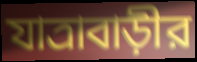
যাত্রাবাড়ীর